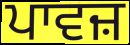
ਪਾਵਜ਼